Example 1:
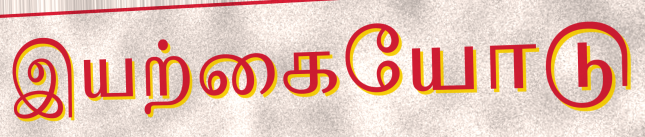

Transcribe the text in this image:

இயற்கையோடு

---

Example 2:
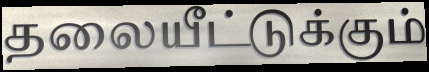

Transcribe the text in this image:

தலையீட்டுக்கும்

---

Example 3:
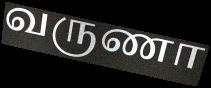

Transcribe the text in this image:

வருணா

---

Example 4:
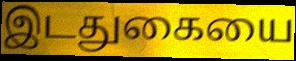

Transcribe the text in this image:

இடதுகையை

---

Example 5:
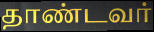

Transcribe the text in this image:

தாண்டவர்